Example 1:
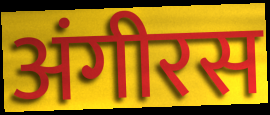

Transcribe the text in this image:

अंगीरस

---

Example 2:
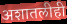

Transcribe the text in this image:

अशातलीही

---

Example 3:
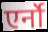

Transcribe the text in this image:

एर्नो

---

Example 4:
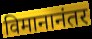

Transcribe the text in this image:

विमानानंतर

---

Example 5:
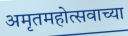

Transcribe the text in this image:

अमृतमहोत्सवाच्या